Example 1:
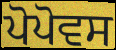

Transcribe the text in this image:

ਪੋਪੋਵਸ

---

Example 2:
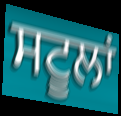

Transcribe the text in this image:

ਸਟੂਲਾਂ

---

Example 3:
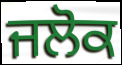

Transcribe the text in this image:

ਜਲੋਕ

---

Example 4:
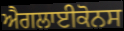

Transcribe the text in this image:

ਐਗਲਾਈਕੋਨਸ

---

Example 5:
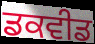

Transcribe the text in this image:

ਡਕਵੀਡ